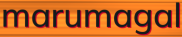
marumagal